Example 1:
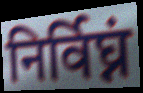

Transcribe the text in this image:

निर्विघ्नं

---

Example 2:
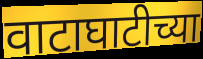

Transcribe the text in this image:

वाटाघाटीच्या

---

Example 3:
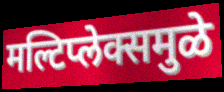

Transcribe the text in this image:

मल्टिप्लेक्समुळे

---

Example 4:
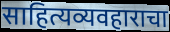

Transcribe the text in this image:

साहित्यव्यवहाराचा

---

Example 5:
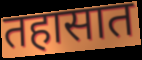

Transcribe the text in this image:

तहासात